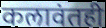
कलावंतही